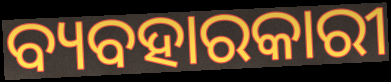
ବ୍ୟବହାରକାରୀ